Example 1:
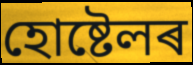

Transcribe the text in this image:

হোষ্টেলৰ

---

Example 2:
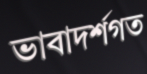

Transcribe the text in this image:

ভাবাদৰ্শগত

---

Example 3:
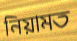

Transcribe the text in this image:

নিয়ামত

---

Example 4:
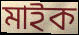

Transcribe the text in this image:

মাইক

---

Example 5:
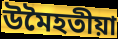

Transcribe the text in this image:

উমৈহতীয়া